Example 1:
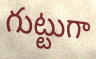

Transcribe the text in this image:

గుట్టుగా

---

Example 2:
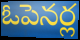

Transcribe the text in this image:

ఓపెనర్ల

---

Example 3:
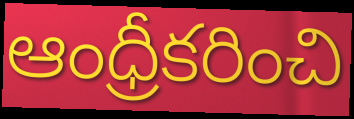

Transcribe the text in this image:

ఆంధ్రీకరించి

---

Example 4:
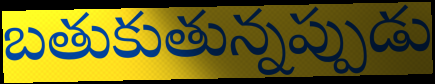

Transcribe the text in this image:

బతుకుతున్నప్పుడు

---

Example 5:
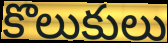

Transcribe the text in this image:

కొలుకులు